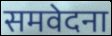
समवेदना